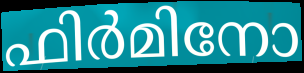
ഫിർമിനോ